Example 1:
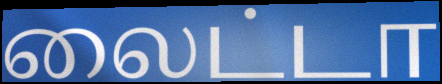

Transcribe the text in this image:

லைட்டா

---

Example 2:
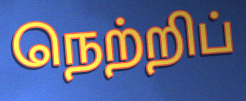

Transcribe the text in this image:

நெற்றிப்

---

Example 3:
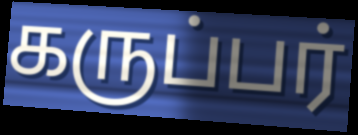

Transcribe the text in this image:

கருப்பர்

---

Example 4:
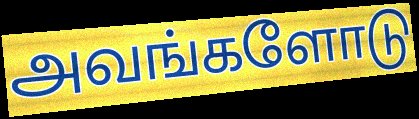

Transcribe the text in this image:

அவங்களோடு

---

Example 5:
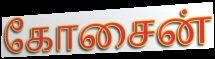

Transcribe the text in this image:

கோசைன்